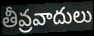
తీవ్రవాదులు